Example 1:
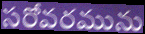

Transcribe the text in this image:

సరోవరమును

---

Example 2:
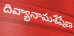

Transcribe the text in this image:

దివ్యానామశేషేణ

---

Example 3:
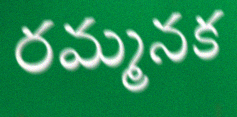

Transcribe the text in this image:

రమ్మనక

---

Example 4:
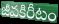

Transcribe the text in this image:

జీవకిరీటం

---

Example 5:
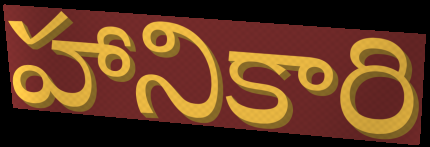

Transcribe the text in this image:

హానికారి